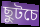
ছুটচে